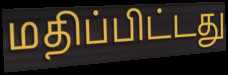
மதிப்பிட்டது